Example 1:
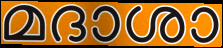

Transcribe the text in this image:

മദാശാ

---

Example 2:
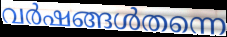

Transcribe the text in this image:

വർഷങ്ങൾതന്നെ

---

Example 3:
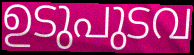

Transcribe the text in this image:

ഉടുപുടവ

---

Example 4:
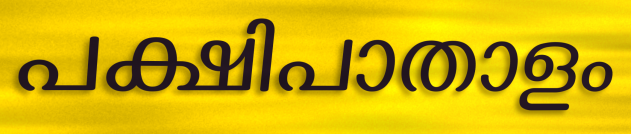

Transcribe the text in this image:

പക്ഷിപാതാളം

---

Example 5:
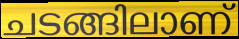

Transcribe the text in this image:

ചടങ്ങിലാണ്